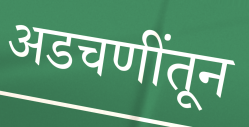
अडचणींतून